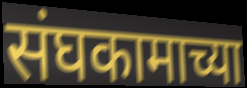
संघकामाच्या